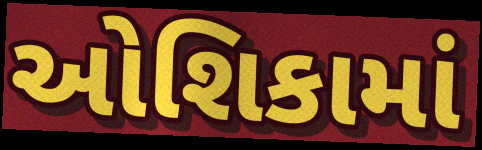
ઓશિકામાં